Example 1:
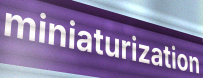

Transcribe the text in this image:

miniaturization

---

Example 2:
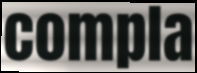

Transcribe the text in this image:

compla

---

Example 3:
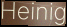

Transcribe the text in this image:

Heinig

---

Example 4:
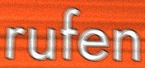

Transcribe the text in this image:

rufen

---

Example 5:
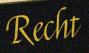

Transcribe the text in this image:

Recht